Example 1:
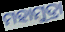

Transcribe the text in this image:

ମହାମୁଦ୍ରା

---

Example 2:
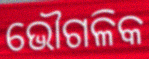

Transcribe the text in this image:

ଭୌଗଳିକ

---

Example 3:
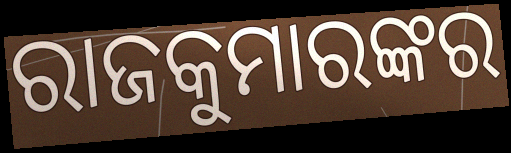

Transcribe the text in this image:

ରାଜକୁମାରଙ୍କର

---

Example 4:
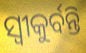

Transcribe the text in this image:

ସ୍ଵୀକୁର୍ବନ୍ତି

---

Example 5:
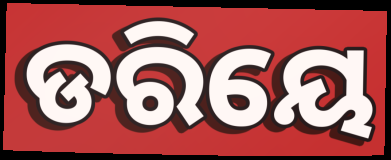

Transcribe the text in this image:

ଡରିୟେ